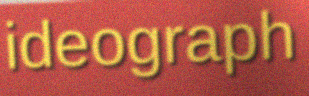
ideograph